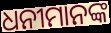
ଧନୀମାନଙ୍କ